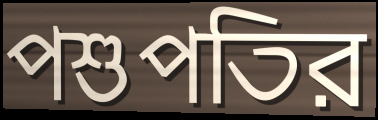
পশুপতির